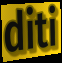
diti